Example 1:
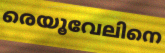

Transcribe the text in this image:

രെയൂവേലിനെ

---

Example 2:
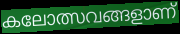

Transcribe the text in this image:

കലോത്സവങ്ങളാണ്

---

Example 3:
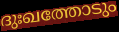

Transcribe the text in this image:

ദുഃഖത്തോടും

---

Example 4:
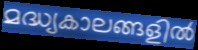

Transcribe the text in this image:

മദ്ധ്യകാലങ്ങളിൽ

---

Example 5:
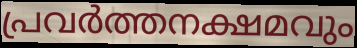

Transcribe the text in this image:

പ്രവർത്തനക്ഷമവും